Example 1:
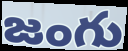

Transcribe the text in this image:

జంగు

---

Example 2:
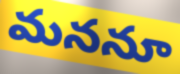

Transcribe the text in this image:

మననూ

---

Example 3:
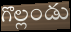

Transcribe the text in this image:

గొల్లండు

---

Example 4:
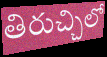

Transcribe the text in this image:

తిరుచ్చిలో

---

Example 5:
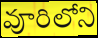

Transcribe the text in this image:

వూరిలోని